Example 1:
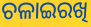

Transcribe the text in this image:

ଚଳାଇରଖି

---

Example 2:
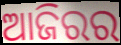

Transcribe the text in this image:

ଆଜିରର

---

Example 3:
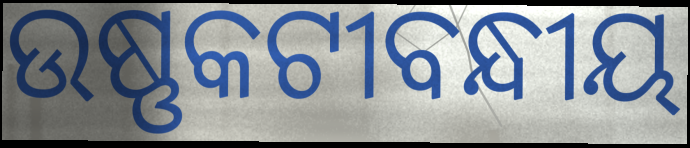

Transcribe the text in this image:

ଉଷ୍ଣକଟୀବନ୍ଧୀୟ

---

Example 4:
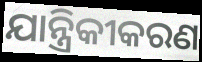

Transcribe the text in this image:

ଯାନ୍ତ୍ରିକୀକରଣ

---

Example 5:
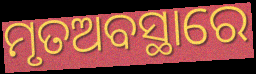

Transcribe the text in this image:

ମୃତଅବସ୍ଥାରେ